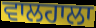
ਵਾਲਹਾਲਾ